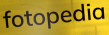
fotopedia